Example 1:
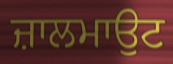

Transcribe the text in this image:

ਜ਼ਾਲਮਾਉਟ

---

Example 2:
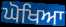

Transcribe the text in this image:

ਘੋਖਿਆ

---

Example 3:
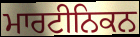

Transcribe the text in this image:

ਮਾਰਟੀਨਿਕਨ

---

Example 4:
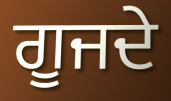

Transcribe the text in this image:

ਗੂਜਦੇ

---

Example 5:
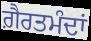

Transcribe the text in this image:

ਗ਼ੈਰਤਮੰਦਾਂ